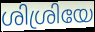
ശിശ്രിയേ